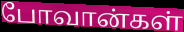
போவான்கள்